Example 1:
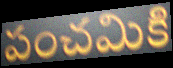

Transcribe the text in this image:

పంచమికి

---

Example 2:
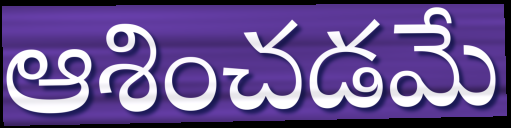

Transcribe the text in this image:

ఆశించడమే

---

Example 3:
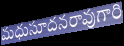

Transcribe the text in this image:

మధుసూదనరావుగారి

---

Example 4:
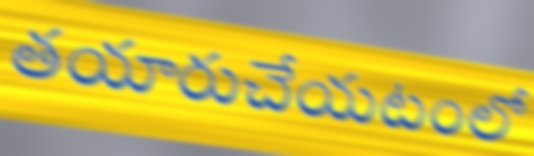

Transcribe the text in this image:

తయారుచేయటంలో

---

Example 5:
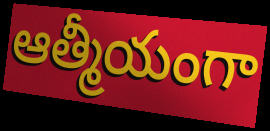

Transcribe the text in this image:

ఆత్మీయంగా